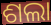
ଶଲା